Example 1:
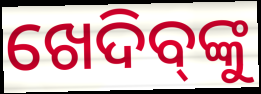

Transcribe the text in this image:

ଖେଦିବ୍‌ଙ୍କୁ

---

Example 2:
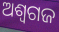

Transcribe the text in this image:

ଅଶ୍ୱଗଜ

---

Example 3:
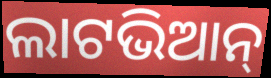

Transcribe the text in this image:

ଲାଟଭିଆନ୍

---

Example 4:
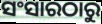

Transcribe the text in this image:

ସଂସାରଠାରୁ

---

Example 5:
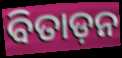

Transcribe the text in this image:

ବିତାଡ଼ନ